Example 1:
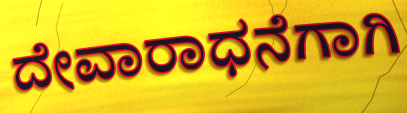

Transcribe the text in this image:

ದೇವಾರಾಧನೆಗಾಗಿ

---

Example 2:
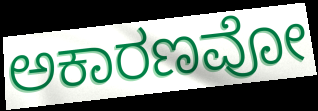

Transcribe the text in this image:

ಅಕಾರಣವೋ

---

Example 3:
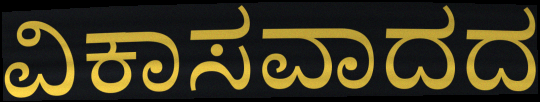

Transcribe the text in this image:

ವಿಕಾಸವಾದದ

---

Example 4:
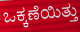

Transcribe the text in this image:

ಒಕ್ಕಣೆಯಿತ್ತು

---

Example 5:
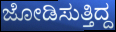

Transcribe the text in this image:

ಜೋಡಿಸುತ್ತಿದ್ದ